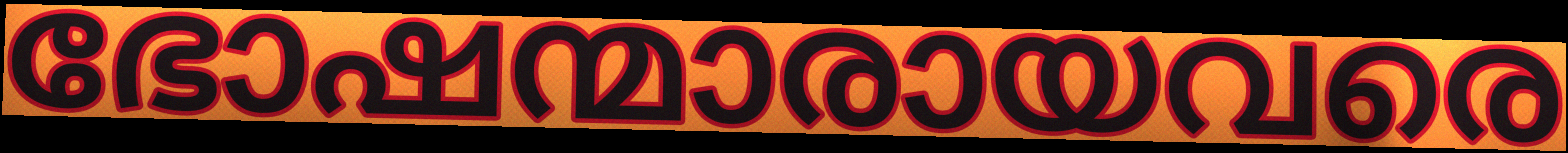
ഭോഷന്മാരായവരെ